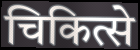
चिकित्से